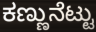
ಕಣ್ಣುನೆಟ್ಟು